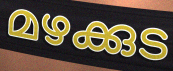
മഴക്കുട